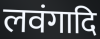
लवंगादि